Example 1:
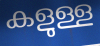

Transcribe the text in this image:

കളുള്ള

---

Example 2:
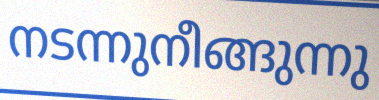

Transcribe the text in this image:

നടന്നുനീങ്ങുന്നു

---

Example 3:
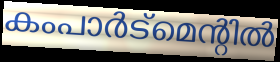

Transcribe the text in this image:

കംപാർട്മെന്റിൽ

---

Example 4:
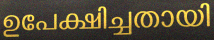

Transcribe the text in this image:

ഉപേക്ഷിച്ചതായി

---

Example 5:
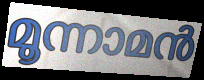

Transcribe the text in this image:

മൂന്നാമൻ